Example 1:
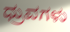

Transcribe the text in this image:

ಧ್ರುವಗಳು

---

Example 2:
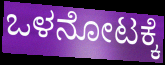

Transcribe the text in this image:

ಒಳನೋಟಕ್ಕೆ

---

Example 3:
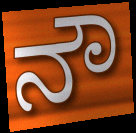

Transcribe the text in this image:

ನೌ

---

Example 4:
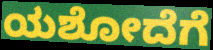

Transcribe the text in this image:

ಯಶೋದೆಗೆ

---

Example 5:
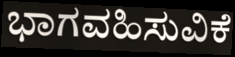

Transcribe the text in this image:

ಭಾಗವಹಿಸುವಿಕೆ